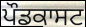
ਪੌਡਕਾਸਟ